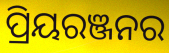
ପ୍ରିୟରଞ୍ଜନର